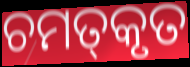
ଚମତ୍‌କୃତ